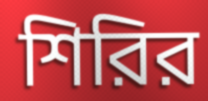
শিরির